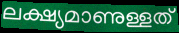
ലക്ഷ്യമാണുള്ളത്